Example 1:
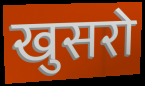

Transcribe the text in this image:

खुसरो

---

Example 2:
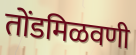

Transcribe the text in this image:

तोंडमिळवणी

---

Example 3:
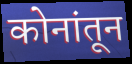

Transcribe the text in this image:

कोनांतून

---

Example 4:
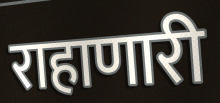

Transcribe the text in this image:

राहाणारी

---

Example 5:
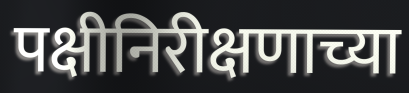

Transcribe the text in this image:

पक्षीनिरीक्षणाच्या